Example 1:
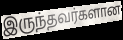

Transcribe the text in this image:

இருந்தவர்களான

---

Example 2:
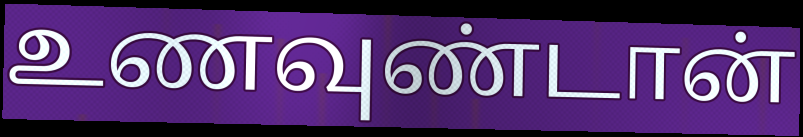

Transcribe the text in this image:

உணவுண்டான்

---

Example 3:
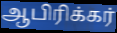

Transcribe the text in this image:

ஆபிரிக்கர்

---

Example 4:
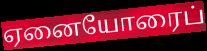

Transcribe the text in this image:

ஏனையோரைப்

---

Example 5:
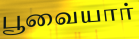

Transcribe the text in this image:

பூவையார்